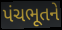
પંચભૂતને